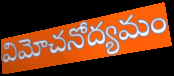
విమోచనోద్యమం